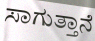
ಸಾಗುತ್ತಾನೆ